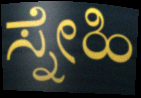
ಸ್ನೇಹಿ